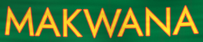
MAKWANA